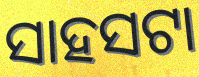
ସାହସଟା